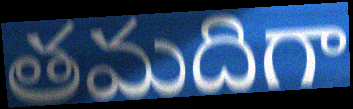
తమదిగా